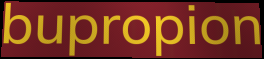
bupropion